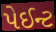
પેઈન્ટ